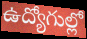
ఉద్యోగుల్లో